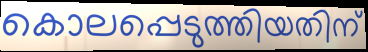
കൊലപ്പെടുത്തിയതിന്